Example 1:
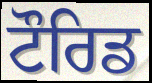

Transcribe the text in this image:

ਟੌਰਿਡ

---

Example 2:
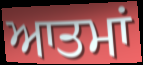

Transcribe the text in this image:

ਆਤਮਾਂ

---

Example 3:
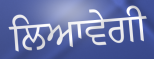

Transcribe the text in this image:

ਲਿਆਵੇਗੀ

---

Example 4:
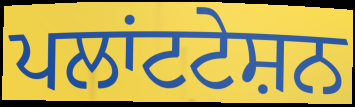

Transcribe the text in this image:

ਪਲਾਂਟਟੇਸ਼ਨ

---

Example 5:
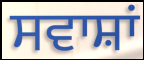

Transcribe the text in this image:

ਸਵਾਸ਼ਾਂ